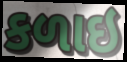
કળાઇ